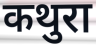
कथुरा